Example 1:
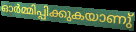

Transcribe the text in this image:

ഓർമ്മിപ്പിക്കുകയാണു്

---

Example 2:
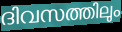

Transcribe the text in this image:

ദിവസത്തിലും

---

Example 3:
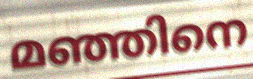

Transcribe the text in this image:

മഞ്ഞിനെ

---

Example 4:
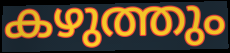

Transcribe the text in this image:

കഴുത്തും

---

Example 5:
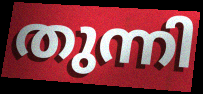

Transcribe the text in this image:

തുന്നി